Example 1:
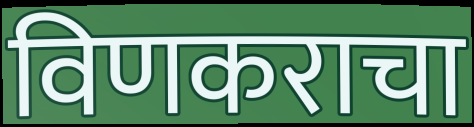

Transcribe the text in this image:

विणकराचा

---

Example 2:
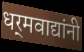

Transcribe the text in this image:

धर्मवाद्यांनी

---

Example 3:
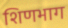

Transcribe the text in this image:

शिणभाग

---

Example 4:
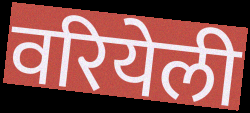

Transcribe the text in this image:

वरियेली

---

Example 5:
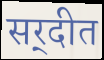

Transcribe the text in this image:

सर्दीत